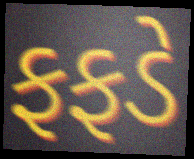
ફફડે